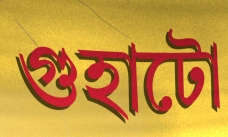
গুহাটো